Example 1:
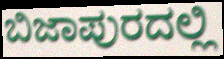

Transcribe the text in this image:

ಬಿಜಾಪುರದಲ್ಲಿ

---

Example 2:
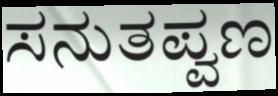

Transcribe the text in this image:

ಸನುತಪ್ವಣ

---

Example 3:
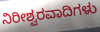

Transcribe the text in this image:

ನಿರೀಶ್ವರವಾದಿಗಳು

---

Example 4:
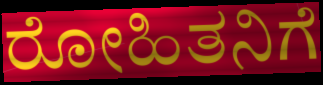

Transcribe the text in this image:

ರೋಹಿತನಿಗೆ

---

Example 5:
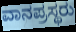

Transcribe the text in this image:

ವಾನಪ್ರಸ್ಥರು